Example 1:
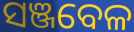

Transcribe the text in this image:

ସଞ୍ଜବେଳ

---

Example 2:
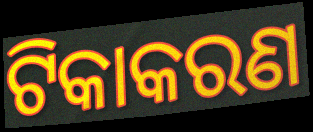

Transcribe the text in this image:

ଟିକାକରଣ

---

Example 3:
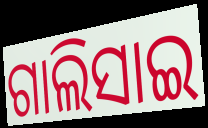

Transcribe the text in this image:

ଗାଲିସାଇ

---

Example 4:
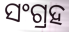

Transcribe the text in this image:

ସଂଗ୍ରହ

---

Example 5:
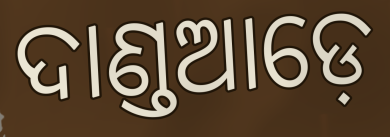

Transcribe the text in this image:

ଦାଣ୍ଡଆଡ଼େ